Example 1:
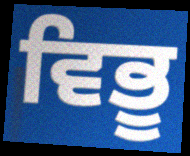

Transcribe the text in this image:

ਵਿਭੂ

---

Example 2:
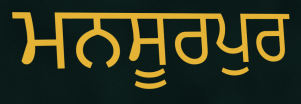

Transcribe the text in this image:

ਮਨਸੂਰਪੁਰ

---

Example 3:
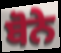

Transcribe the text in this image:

ਬੋਨੇ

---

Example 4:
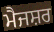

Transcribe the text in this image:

ਮੈਜਸ਼ਰ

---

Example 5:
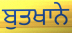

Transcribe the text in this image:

ਬੁਤਖਾਨੇ